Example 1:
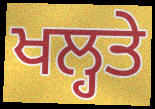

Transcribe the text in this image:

ਖਲ੍ਹਤੇ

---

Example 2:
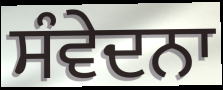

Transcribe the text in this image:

ਸੰਵੇਦਨਾ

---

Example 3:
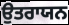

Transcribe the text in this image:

ਉਤਰਾਯਨ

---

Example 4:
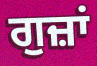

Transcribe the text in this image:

ਗੁਜ਼ਾਂ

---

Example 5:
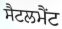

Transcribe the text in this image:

ਸੈਟਲਮੈਂਟ